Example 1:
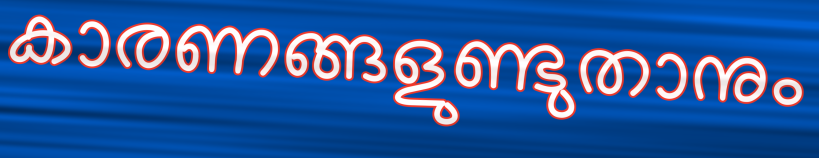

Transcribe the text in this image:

കാരണങ്ങളുണ്ടുതാനും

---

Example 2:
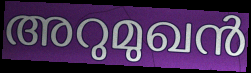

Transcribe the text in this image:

അറുമുഖൻ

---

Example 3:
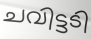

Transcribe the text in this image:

ചവിട്ടടി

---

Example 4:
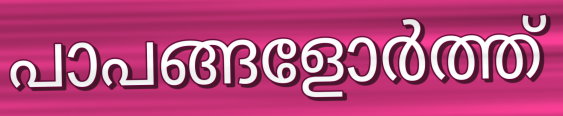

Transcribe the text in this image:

പാപങ്ങളോർത്ത്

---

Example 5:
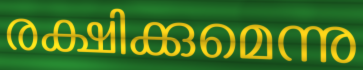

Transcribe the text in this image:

രക്ഷിക്കുമെന്നു